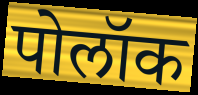
पोलॉक